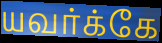
யவர்க்கே